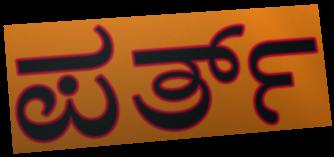
ಪರ್ತ್